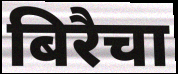
बिरैचा